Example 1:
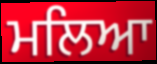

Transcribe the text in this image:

ਮਲਿਆ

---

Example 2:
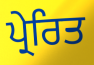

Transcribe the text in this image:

ਪ੍ਰੇਰਿਤ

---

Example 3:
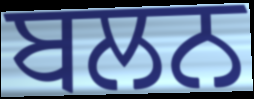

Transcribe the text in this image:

ਬਲਨ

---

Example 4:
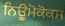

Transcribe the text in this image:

ਨਿਊਮੋਕੋਕਸ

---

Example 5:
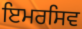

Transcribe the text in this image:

ਇਮਰਸਿਵ